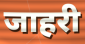
जाहरी